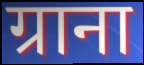
ग्राना